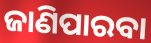
ଜାଣିପାରବା